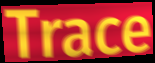
Trace